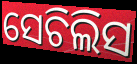
ସେଚିଲିସ